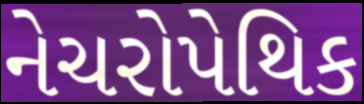
નેચરોપેથિક